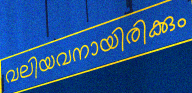
വലിയവനായിരിക്കും